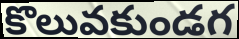
కొలువకుండగ